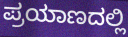
ಪ್ರಯಾಣದಲ್ಲಿ